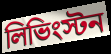
লিভিংস্টন